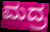
ಮದ್ರ